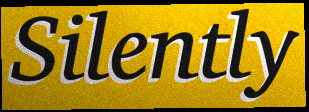
Silently